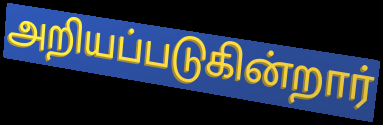
அறியப்படுகின்றார்